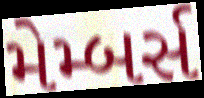
મેમ્બર્સ